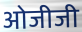
ओजीजी